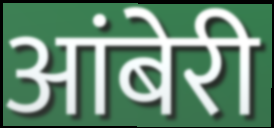
आंबेरी